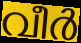
വീർ